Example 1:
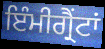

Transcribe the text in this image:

ਇੰਮੀਗ੍ਰੈਂਟਾਂ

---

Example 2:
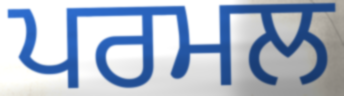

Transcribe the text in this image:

ਪਰਮਲ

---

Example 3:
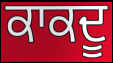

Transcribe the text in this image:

ਕਾਕਦੂ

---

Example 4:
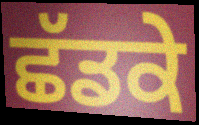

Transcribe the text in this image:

ਛੱਡਕੇ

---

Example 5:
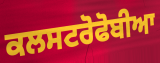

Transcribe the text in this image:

ਕਲਸਟਰੋਫੋਬੀਆ